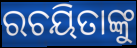
ରଚୟିତାଙ୍କୁ